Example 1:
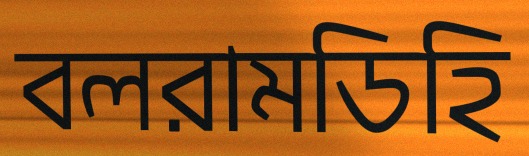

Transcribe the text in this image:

বলরামডিহি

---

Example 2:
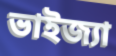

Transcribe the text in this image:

ভাইজ্যা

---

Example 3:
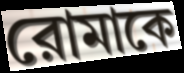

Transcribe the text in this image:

রোমাকে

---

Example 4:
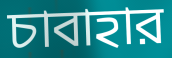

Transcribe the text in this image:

চাবাহার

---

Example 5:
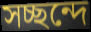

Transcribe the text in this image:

সচ্ছন্দে